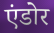
एंडोर